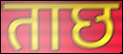
ताछ